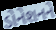
ડોનેશનને